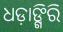
ଧଡ଼ାଙ୍ଗିରି